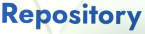
Repository